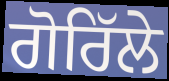
ਗੋਰਿੱਲੇ